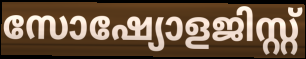
സോഷ്യോളജിസ്റ്റ്